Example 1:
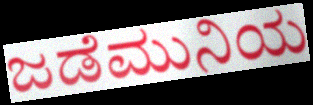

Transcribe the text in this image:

ಜಡೆಮುನಿಯ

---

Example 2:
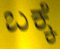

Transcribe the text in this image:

ಬಕ್ಕೆ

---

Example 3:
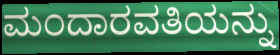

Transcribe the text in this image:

ಮಂದಾರವತಿಯನ್ನು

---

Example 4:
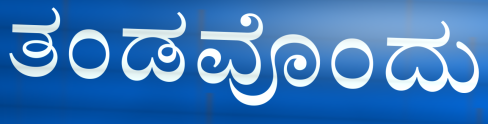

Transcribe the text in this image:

ತಂಡವೊಂದು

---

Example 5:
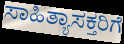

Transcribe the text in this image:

ಸಾಹಿತ್ಯಾಸಕ್ತರಿಗೆ